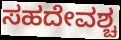
ಸಹದೇವಶ್ಚ